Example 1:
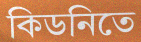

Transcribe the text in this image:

কিডনিতে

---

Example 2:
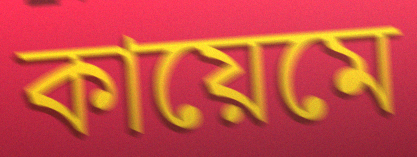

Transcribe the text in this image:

কায়েমে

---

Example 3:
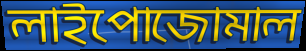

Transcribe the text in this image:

লাইপোজোমাল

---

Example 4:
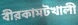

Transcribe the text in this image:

বীরকামটখালী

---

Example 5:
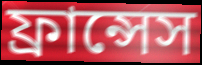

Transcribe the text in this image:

ফ্রান্সেস